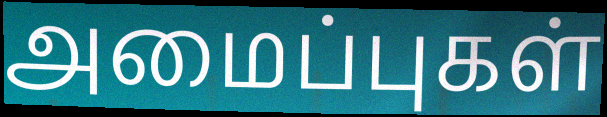
அமைப்புகள்